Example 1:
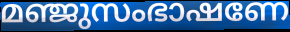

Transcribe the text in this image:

മഞ്ജുസംഭാഷണേ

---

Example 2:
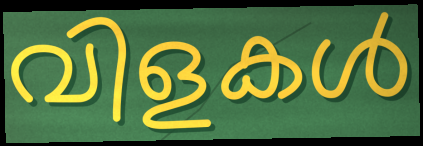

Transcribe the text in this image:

വിളകൾ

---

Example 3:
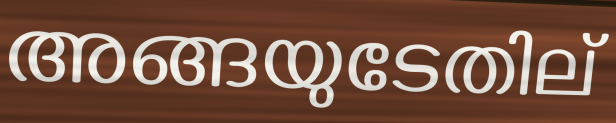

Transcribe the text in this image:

അങ്ങയുടേതില്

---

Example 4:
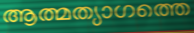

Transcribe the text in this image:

ആത്മത്യാഗത്തെ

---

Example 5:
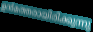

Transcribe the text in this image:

ഉൻമത്തരായിരിക്കുന്നു